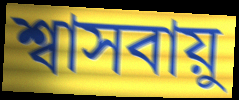
শ্বাসবায়ু